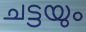
ചട്ടയും